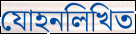
যোহনলিখিত